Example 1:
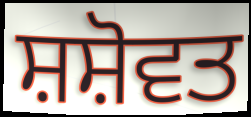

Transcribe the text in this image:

ਸ਼ਸ਼ੋਵਤ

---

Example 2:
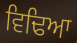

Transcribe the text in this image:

ਵਿਢਿਆ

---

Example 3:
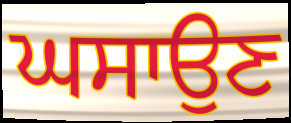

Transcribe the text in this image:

ਘਸਾਉਣ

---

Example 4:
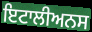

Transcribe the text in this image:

ਇਟਾਲੀਅਨਸ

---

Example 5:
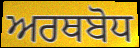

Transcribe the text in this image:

ਅਰਥਬੋਧ